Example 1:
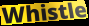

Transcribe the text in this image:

Whistle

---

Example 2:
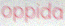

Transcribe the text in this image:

oppida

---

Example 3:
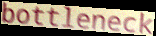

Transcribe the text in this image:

bottleneck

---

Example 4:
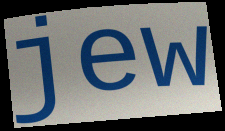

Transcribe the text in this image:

jew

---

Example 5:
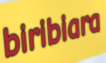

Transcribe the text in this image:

biribiara